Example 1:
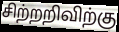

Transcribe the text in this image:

சிற்றறிவிற்கு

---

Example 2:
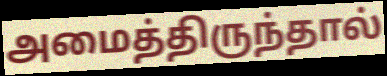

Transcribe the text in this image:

அமைத்திருந்தால்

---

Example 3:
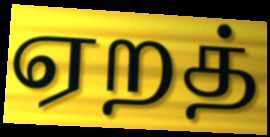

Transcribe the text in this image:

ஏறத்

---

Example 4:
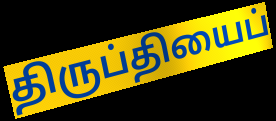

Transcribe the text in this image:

திருப்தியைப்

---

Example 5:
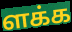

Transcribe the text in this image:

ளக்க